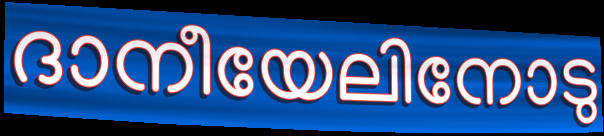
ദാനീയേലിനോടു